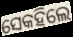
ସେକହିଲେ